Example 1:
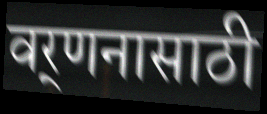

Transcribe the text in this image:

वर्णनासाठी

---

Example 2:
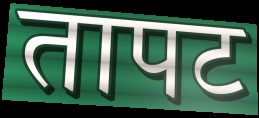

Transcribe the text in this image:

तापट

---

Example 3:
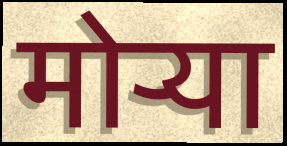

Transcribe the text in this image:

मोर्‍या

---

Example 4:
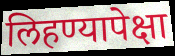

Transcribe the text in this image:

लिहण्यापेक्षा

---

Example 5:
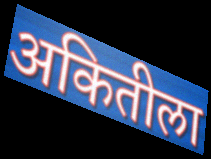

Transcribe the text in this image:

अकितीला